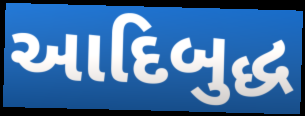
આદિબુદ્ધ